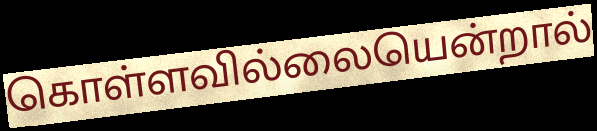
கொள்ளவில்லையென்றால்